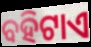
ବହିଟାଏ